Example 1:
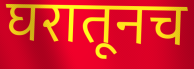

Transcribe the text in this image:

घरातूनच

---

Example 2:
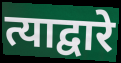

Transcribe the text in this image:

त्याद्वारे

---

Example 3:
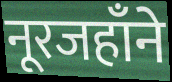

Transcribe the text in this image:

नूरजहाँने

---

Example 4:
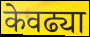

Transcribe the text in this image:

केवढ्या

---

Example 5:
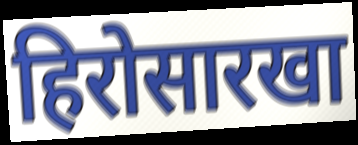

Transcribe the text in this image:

हिरोसारखा